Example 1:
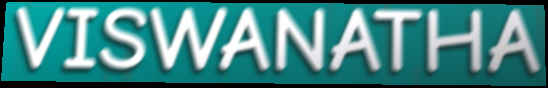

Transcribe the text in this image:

VISWANATHA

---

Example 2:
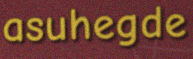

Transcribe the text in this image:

asuhegde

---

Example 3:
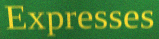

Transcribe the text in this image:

Expresses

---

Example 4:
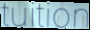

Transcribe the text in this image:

tuition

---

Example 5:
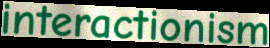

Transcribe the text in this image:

interactionism